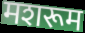
मशरूम